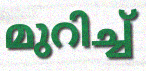
മുറിച്ച്